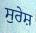
ਸੁਰੇਸ਼